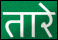
तारे